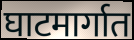
घाटमार्गात